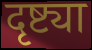
दृष्ट्या